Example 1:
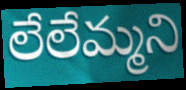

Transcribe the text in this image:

లేలేమ్మని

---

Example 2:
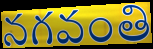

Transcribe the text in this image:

నగవంతి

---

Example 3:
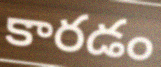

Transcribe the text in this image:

కారడం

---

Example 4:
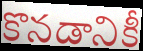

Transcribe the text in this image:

కొనడానికీ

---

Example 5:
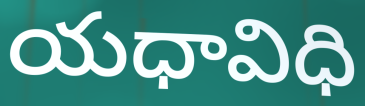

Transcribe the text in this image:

యధావిధి